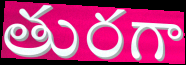
తురగా